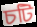
চটি